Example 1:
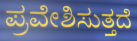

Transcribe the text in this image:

ಪ್ರವೇಶಿಸುತ್ತದೆ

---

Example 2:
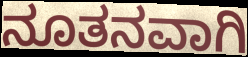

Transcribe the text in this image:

ನೂತನವಾಗಿ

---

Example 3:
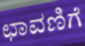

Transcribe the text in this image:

ಛಾವಣಿಗೆ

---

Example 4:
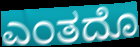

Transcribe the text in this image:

ಎಂತದೊ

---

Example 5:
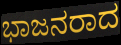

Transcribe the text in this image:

ಭಾಜನರಾದ